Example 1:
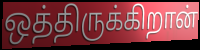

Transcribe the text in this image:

ஒத்திருக்கிறான்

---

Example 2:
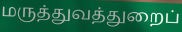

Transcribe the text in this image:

மருத்துவத்துறைப்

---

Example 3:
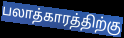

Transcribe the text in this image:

பலாத்காரத்திற்கு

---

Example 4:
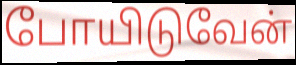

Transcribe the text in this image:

போயிடுவேன்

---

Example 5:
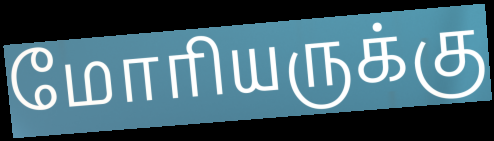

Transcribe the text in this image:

மோரியருக்கு